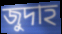
জুদাহ